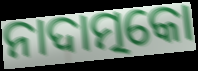
ନାଦାତ୍ମକୋ